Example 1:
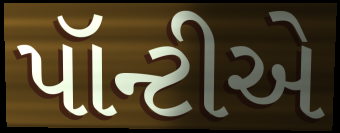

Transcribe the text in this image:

પૉન્ટીએ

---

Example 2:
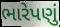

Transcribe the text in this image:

ભારેપણું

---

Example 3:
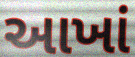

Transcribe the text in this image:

આખાં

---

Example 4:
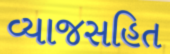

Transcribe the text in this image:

વ્યાજસહિત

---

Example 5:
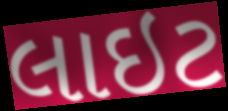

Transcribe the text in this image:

લાઇટ